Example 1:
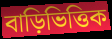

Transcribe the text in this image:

বাড়িভিত্তিক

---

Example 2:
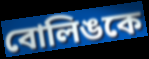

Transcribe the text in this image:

বোলিঙকে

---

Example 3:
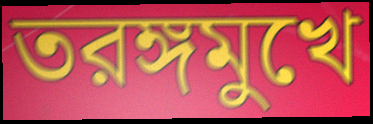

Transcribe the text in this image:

তরঙ্গমুখে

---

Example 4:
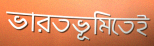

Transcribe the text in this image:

ভারতভূমিতেই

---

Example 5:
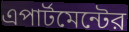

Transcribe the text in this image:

এপার্টমেন্টের